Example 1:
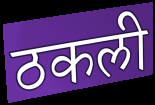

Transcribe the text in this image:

ठकली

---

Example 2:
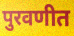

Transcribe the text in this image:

पुरवणीत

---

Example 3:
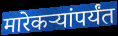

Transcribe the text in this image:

मारेकऱ्यांपर्यंत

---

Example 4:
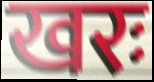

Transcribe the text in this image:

खरः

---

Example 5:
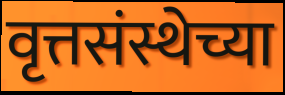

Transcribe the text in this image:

वृत्तसंस्थेच्या